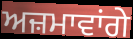
ਅਜ਼ਮਾਵਾਂਗੇ